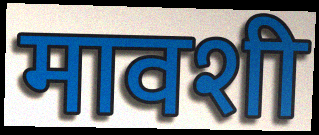
मावशी